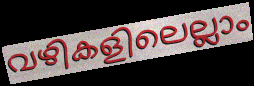
വഴികളിലെല്ലാം